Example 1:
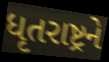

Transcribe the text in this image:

ધૃતરાષ્ટ્રને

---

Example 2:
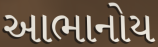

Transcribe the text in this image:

આભાનોય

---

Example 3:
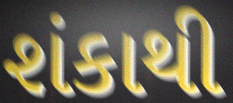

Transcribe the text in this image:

શંકાથી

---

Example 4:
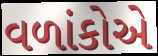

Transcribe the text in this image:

વળાંકોએ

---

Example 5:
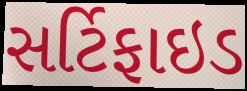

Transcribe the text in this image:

સર્ટિફાઇડ